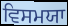
ਵਿਸਮਯਾ